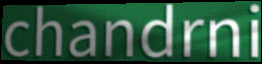
chandrni